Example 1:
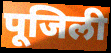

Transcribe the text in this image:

पूजिली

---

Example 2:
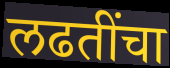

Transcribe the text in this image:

लढतींचा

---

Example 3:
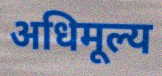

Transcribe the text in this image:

अधिमूल्य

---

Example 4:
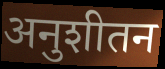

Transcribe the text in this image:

अनुशीतन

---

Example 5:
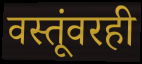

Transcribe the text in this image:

वस्तूंवरही